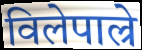
विलेपाल्रे